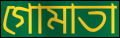
গোমাতা